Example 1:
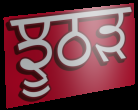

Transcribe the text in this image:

ਝੂਠੜ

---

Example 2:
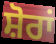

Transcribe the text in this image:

ਸ਼ੋਰਾਂ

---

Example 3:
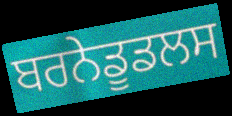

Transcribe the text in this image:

ਬਰਨੇਡੂਡਲਸ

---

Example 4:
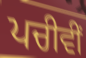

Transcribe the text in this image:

ਪਚੀਵੀਂ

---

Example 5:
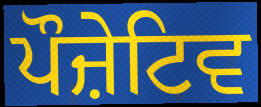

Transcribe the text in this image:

ਪੌਜ਼ੇਟਿਵ